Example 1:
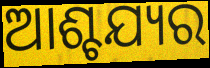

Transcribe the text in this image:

ଆଶ୍ଚଯ୍ୟର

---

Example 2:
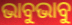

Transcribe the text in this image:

ଭାବୁଭାବୁ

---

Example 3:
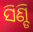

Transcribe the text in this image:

ସିଣ୍ଡି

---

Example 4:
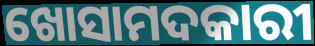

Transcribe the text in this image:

ଖୋସାମଦକାରୀ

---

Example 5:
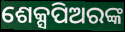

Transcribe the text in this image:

ଶେକ୍ସପିଅରଙ୍କ